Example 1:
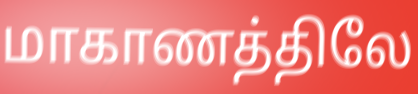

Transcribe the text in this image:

மாகாணத்திலே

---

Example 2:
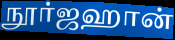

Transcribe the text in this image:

நூர்ஜஹான்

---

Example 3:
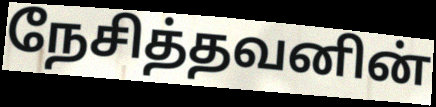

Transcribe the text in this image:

நேசித்தவனின்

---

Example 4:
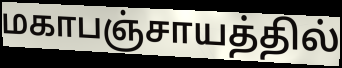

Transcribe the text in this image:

மகாபஞ்சாயத்தில்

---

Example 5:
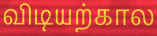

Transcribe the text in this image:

விடியற்கால